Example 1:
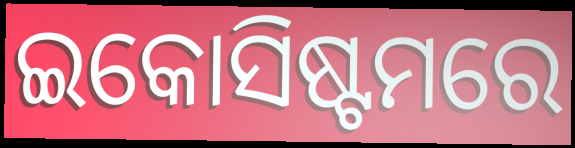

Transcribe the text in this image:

ଇକୋସିଷ୍ଟମରେ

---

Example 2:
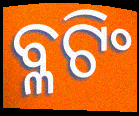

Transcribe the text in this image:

ବ୍ଳଟିଂ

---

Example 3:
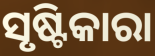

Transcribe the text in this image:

ସୃଷ୍ଟିକାରା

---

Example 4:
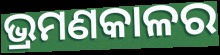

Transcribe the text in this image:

ଭ୍ରମଣକାଳର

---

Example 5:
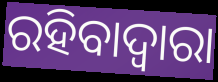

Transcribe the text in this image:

ରହିବାଦ୍ଵାରା